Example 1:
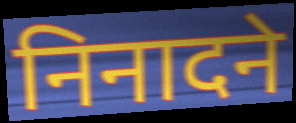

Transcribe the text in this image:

निनादने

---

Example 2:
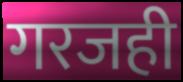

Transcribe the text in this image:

गरजही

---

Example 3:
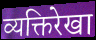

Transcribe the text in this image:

व्यक्तिरेखा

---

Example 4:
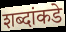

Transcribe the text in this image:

शब्दांकडे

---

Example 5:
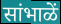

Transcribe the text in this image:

सांभाळें